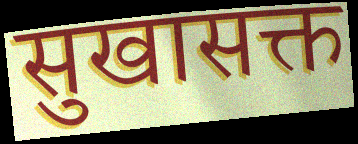
सुखासक्त